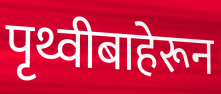
पृथ्वीबाहेरून